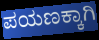
ಪಯಣಕ್ಕಾಗಿ